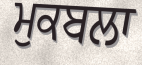
ਮੁਕਬਲਾ